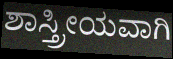
ಶಾಸ್ತ್ರೀಯವಾಗಿ